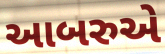
આબરુએ